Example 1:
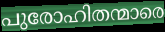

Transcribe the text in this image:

പുരോഹിതന്മാരെ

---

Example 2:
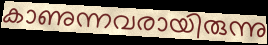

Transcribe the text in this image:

കാണുന്നവരായിരുന്നു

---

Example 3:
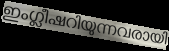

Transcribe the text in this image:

ഇംഗ്ലീഷറിയുന്നവരായി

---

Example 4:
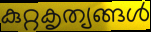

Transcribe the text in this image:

കുറ്റകൃത്യങ്ങൾ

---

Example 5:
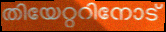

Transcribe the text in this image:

തിയേറ്ററിനോട്